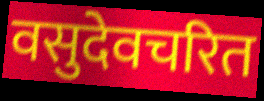
वसुदेवचरित